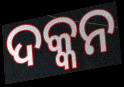
ଦକ୍କନ